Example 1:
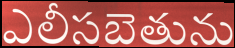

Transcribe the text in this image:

ఎలీసబెతును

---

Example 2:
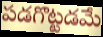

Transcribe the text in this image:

పడగొట్టడమే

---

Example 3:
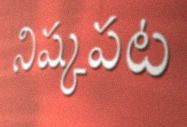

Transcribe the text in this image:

నిష్కపట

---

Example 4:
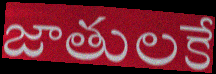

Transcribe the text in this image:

జాతులకే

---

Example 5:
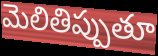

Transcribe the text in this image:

మెలితిప్పుతూ